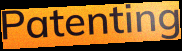
Patenting